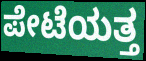
ಪೇಟೆಯತ್ತ